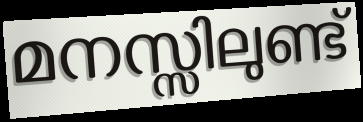
മനസ്സിലുണ്ട്